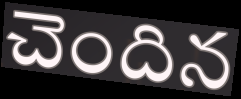
చెందిన